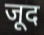
जूद